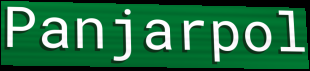
Panjarpol